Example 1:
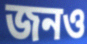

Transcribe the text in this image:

জনও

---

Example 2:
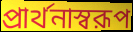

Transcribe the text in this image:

প্রার্থনাস্বরূপ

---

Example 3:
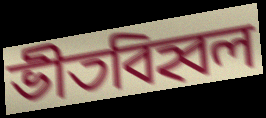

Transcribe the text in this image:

ভীতবিহ্বল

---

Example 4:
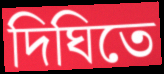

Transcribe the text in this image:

দিঘিতে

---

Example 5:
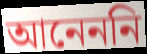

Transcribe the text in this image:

আনেননি